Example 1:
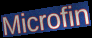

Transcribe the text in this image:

Microfin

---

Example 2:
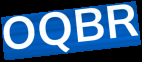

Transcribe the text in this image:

OQBR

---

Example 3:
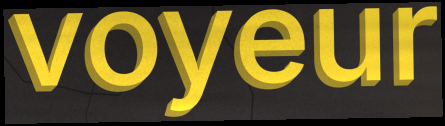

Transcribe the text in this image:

voyeur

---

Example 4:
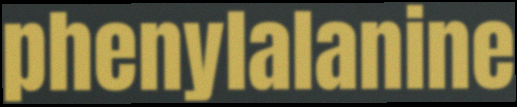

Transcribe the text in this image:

phenylalanine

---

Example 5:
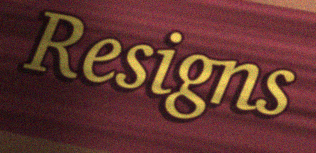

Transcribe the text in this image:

Resigns